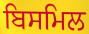
ਬਿਸਮਿਲ